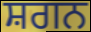
ਸ਼ਗਨ